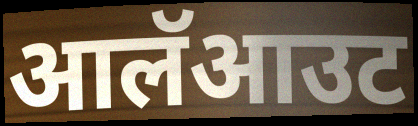
आलॅआउट